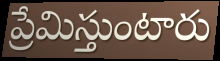
ప్రేమిస్తుంటారు